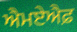
ਐਮਏਐਫ਼